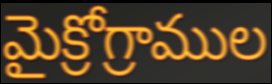
మైక్రోగ్రాముల